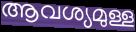
ആവശ്യമുള്ള